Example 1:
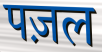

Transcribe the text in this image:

पज़ल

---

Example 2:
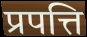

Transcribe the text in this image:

प्रपत्ति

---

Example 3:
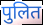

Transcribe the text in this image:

पुलित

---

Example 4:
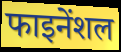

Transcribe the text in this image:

फाइनेंशल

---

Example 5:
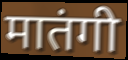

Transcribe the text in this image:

मातंगी